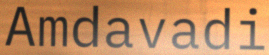
Amdavadi